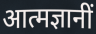
आत्मज्ञानीं